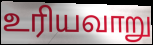
உரியவாறு